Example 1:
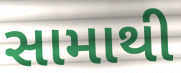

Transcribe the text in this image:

સામાથી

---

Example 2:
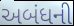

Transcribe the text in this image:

અબંધની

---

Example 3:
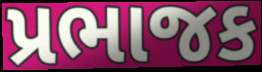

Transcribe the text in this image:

પ્રભાજક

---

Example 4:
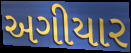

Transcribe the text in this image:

અગીયાર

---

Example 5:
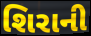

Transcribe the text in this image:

શિરાની